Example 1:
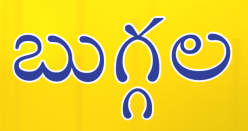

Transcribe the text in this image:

బుగ్గల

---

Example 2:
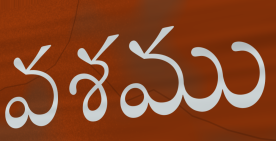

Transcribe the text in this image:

వశము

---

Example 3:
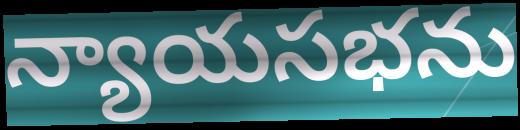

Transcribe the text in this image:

న్యాయసభను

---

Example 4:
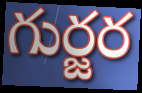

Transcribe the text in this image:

గుర్జర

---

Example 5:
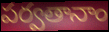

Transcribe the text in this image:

పర్వతానాం